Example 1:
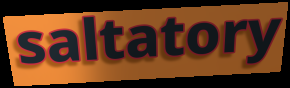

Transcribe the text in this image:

saltatory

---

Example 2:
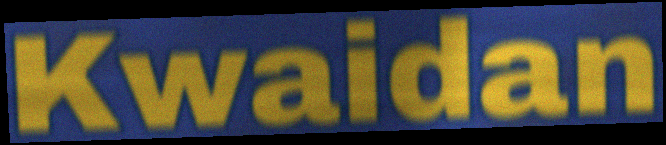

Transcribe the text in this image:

Kwaidan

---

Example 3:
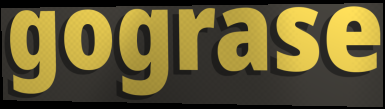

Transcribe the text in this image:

gograse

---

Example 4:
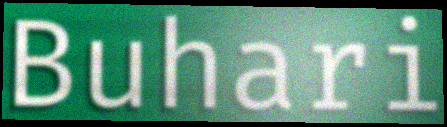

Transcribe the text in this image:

Buhari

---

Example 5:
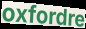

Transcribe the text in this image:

oxfordre